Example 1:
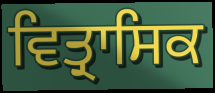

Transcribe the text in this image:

ਵਿਤ੍ਰਾਸਿਕ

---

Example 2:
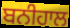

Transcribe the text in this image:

ਬਨੀਹਾਲ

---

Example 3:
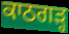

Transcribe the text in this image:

ਕਾਠਗਡ਼੍ਹ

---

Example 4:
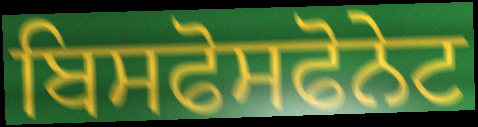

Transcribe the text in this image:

ਬਿਸਫੋਸਫੋਨੇਟ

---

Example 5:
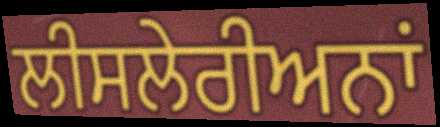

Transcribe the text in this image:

ਲੀਸਲੇਰੀਅਨਾਂ